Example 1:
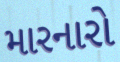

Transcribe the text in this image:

મારનારો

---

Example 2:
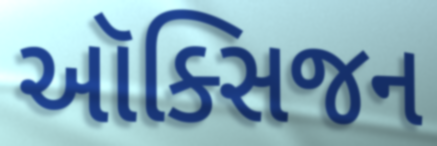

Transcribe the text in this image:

ઑક્સિજન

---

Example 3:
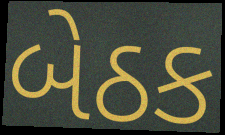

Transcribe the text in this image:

બેઠક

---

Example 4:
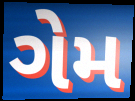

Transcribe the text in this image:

ગેમ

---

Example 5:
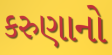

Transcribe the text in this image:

કરુણાનો